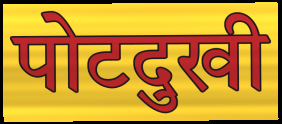
पोटदुखी